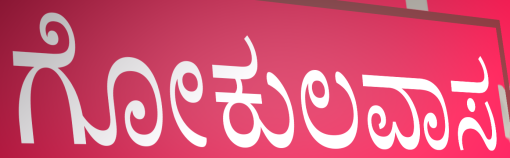
ಗೋಕುಲವಾಸ